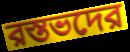
রস্তভদের